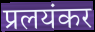
प्रलयंकर